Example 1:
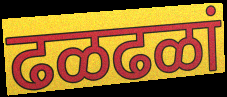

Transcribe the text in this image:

ढळढळां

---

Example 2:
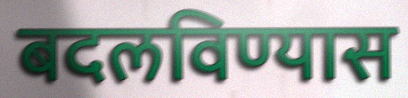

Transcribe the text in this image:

बदलविण्यास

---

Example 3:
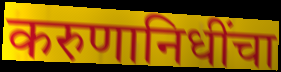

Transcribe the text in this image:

करुणानिधींचा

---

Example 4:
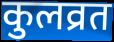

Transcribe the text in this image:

कुलव्रत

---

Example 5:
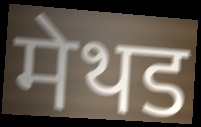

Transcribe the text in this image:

मेथड